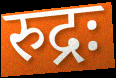
रुद्रः